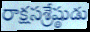
రాక్షసశ్రేష్ఠుడు